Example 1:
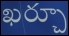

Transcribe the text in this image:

ఖర్చూ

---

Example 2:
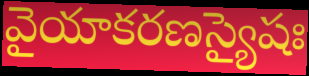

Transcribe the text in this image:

వైయాకరణస్యైషః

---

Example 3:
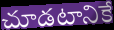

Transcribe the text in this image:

చూడటానికే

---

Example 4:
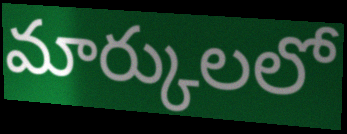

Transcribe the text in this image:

మార్కులలో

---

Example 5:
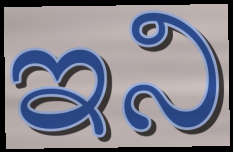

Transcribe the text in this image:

ఇని